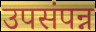
उपसंपन्न